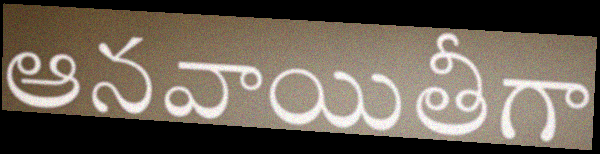
ఆనవాయితీగా